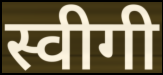
स्वीगी